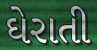
ઘેરાતી